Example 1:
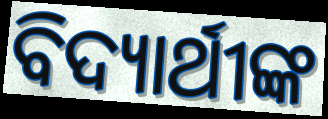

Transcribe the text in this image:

ବିଦ୍ୟାର୍ଥୀଙ୍କ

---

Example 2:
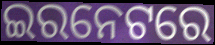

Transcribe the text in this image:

ଇରନେଟରେ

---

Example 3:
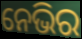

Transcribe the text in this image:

ନେଭିର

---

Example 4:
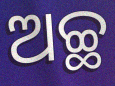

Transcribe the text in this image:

ଅଚ୍ଛ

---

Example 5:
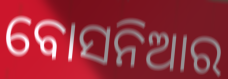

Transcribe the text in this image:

ବୋସନିଆର